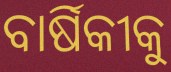
ବାର୍ଷିକୀକୁ